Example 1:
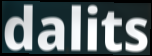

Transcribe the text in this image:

dalits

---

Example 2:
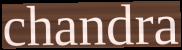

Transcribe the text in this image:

chandra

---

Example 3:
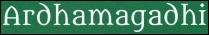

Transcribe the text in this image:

Ardhamagadhi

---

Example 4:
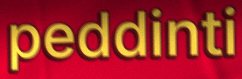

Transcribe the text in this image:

peddinti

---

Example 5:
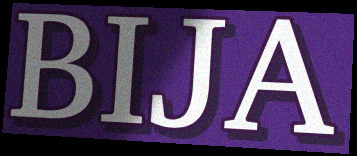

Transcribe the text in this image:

BIJA